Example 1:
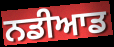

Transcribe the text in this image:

ਨਡੀਆਡ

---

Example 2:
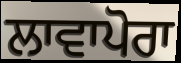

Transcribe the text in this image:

ਲਾਵਾਪੋਰਾ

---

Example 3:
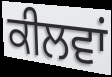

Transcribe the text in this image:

ਕੀਲਵਾਂ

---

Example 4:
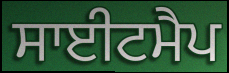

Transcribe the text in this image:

ਸਾਈਟਮੈਪ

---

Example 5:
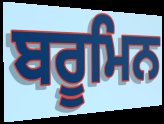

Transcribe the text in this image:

ਬਰੂਮਿਨ